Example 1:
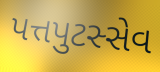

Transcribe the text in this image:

પત્તપુટસ્સેવ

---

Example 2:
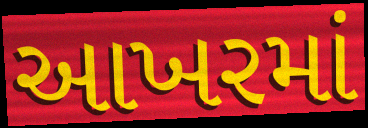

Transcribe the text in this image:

આખરમાં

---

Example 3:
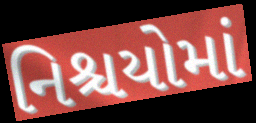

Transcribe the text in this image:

નિશ્ચયોમાં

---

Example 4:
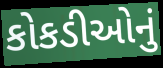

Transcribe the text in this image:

કોકડીઓનું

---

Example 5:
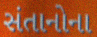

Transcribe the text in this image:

સંતાનોના